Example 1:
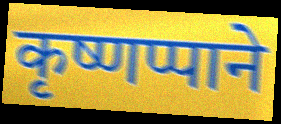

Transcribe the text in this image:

कृष्णप्पाने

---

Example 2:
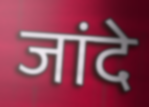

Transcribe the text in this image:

जांदे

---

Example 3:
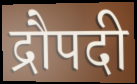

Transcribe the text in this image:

द्रौपदी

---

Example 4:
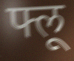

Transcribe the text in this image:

फ्लू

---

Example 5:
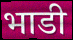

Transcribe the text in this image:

भाडी